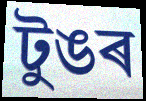
টুঙৰ